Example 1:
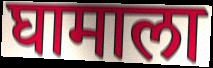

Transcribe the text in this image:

घामाला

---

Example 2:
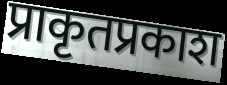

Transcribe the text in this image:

प्राकृतप्रकाश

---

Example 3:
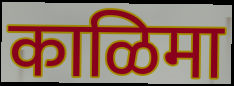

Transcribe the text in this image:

काळिमा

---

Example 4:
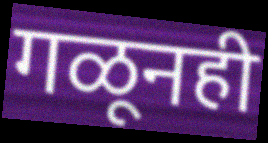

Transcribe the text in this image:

गळूनही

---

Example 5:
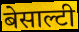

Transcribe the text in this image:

बेसाल्टी